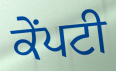
ਕੇਂਪਟੀ